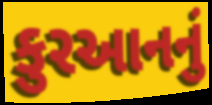
કુરઆનનું